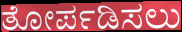
ತೋರ್ಪಡಿಸಲು